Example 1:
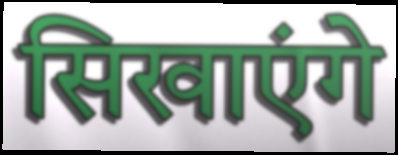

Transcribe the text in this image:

सिखाएंगे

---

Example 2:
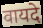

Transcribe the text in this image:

वायदे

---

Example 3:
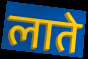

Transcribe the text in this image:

लाते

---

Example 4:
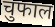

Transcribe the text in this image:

चुफाल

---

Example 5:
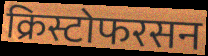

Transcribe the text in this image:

क्रिस्टोफरसन